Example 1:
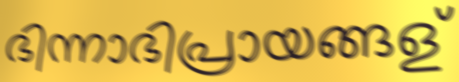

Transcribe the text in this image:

ഭിന്നാഭിപ്രായങ്ങള്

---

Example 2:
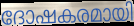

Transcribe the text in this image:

ദോഷകരമായി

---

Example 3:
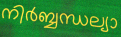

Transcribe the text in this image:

നിർബ്ബന്ധല്യാ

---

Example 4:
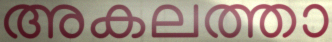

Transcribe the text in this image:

അകലത്താ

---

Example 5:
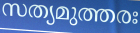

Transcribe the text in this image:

സത്യമുത്തരഃ